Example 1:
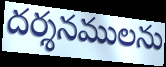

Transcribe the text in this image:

దర్శనములను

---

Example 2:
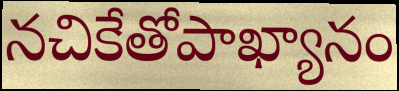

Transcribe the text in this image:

నచికేతోపాఖ్యానం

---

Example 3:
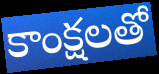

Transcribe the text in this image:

కాంక్షలతో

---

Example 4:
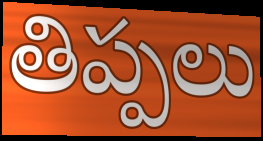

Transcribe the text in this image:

తిప్పలు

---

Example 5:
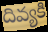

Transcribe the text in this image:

దివ్యకి